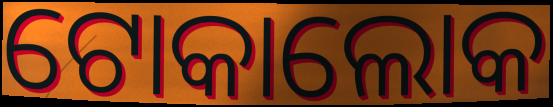
ଟୋକାଲୋକ